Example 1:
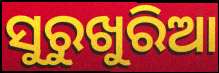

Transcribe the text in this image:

ସୁରୁଖୁରିଆ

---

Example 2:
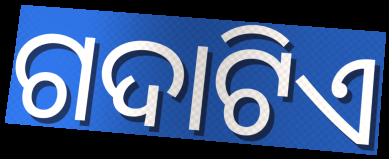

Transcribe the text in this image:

ଗଦାଟିଏ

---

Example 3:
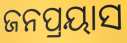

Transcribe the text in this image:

ଜନପ୍ରୟାସ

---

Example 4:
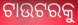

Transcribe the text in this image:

ଟାଉଟରକୁ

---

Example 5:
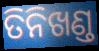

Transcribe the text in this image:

ତିନିଖଣ୍ଡ